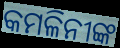
କମଳିନୀଙ୍କ